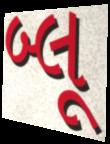
બ્લૂ